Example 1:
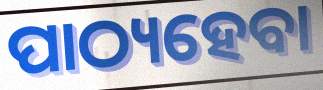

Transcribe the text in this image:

ପାଠ୍ୟହେବା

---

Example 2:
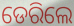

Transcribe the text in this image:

ଡେରିଲେ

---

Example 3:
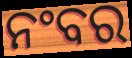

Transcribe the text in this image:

ନଂବର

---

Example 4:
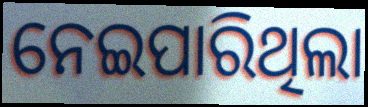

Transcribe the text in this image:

ନେଇପାରିଥିଲା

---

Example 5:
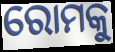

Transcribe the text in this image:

ରୋମକୁ